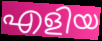
എളിയ